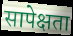
सापेक्षता